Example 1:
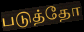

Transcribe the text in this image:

படுத்தோ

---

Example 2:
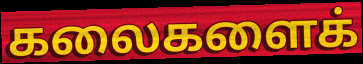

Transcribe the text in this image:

கலைகளைக்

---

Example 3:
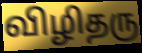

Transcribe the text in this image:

விழிதரு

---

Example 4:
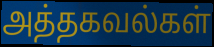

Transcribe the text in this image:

அத்தகவல்கள்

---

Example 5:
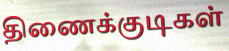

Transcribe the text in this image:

திணைக்குடிகள்